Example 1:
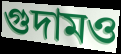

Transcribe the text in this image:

গুদামও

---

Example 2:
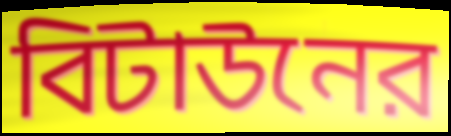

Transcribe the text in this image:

বিটাউনের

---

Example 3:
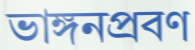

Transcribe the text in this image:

ভাঙ্গনপ্রবণ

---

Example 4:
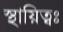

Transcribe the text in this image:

স্থায়িত্বঃ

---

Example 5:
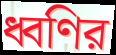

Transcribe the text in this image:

ধ্বণির